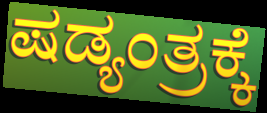
ಷಡ್ಯಂತ್ರಕ್ಕೆ